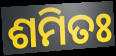
ଶମିତଃ